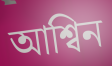
আশ্বিন